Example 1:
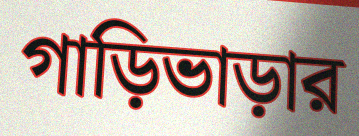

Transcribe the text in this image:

গাড়িভাড়ার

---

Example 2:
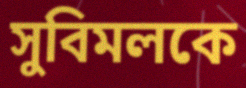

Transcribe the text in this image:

সুবিমলকে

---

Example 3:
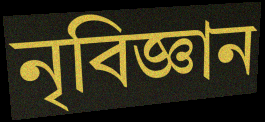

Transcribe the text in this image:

নৃবিজ্ঞান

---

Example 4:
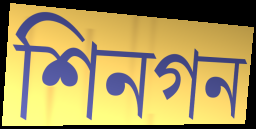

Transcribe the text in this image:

শিনগন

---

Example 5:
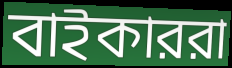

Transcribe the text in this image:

বাইকাররা